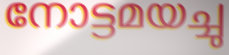
നോട്ടമയച്ചു